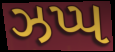
ઝપ્પ